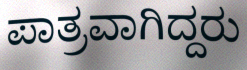
ಪಾತ್ರವಾಗಿದ್ದರು